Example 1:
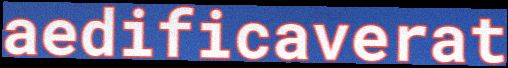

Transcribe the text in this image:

aedificaverat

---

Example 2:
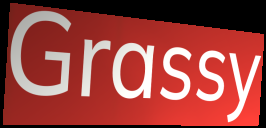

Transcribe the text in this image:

Grassy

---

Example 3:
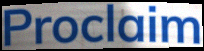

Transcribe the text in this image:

Proclaim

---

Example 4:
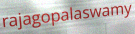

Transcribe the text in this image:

rajagopalaswamy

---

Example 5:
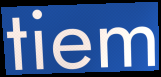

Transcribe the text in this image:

tiem